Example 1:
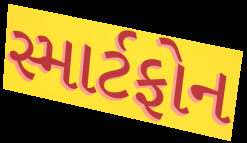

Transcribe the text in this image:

સ્માર્ટફોન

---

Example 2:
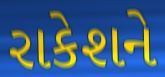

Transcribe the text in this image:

રાકેશને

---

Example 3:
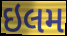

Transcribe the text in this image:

ઇલમ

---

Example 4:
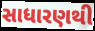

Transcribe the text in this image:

સાધારણથી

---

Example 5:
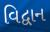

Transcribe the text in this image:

વિદ્વાન